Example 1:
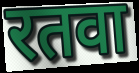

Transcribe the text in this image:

रतवा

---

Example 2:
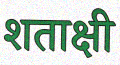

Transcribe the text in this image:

शताक्षी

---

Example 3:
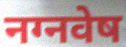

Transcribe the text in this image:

नग्नवेष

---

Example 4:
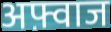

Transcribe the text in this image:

अफ़्वाज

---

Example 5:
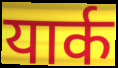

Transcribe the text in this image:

यार्क